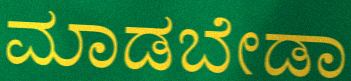
ಮಾಡಬೇಡಾ